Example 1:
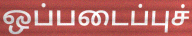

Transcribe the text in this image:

ஒப்படைப்புச்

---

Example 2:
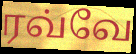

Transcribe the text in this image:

ரவ்வே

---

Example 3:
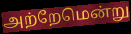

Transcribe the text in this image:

அற்றேமென்று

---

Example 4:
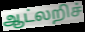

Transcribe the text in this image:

ஆட்லறிச்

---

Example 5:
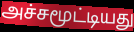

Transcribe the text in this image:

அச்சமூட்டியது